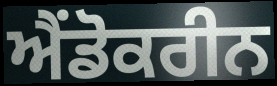
ਐਂਡੋਕਰੀਨ